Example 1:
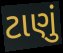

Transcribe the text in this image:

ટાણું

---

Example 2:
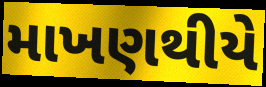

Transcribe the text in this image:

માખણથીયે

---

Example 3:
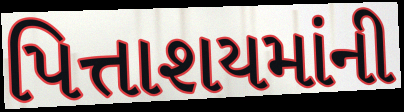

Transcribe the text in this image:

પિત્તાશયમાંની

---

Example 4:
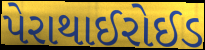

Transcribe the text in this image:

પેરાથાઈરોઈડ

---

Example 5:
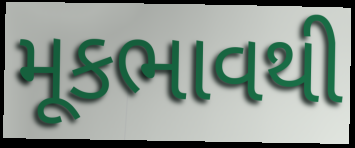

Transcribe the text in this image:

મૂકભાવથી